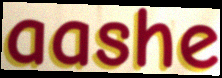
aashe